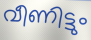
വീണിട്ടും